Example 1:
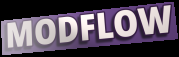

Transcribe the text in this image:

MODFLOW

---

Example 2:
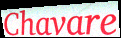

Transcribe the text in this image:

Chavare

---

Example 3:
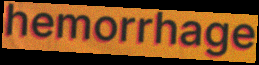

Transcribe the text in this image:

hemorrhage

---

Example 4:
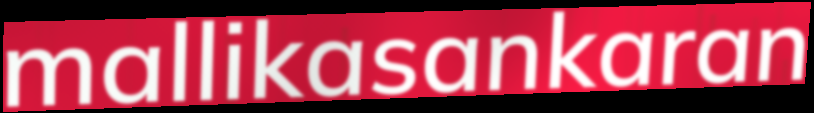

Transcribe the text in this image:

mallikasankaran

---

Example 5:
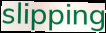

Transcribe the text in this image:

slipping